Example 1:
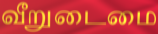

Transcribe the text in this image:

வீறுடைமை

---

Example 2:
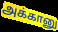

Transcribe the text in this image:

அக்கானு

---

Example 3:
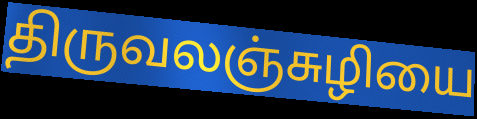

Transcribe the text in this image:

திருவலஞ்சுழியை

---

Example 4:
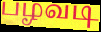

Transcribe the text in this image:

பழவடி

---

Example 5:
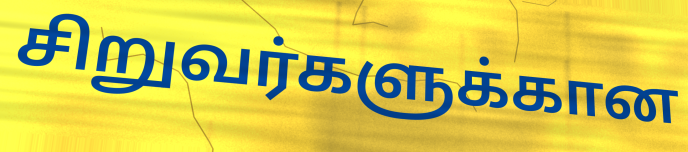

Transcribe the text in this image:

சிறுவர்களுக்கான